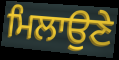
ਮਿਲਾਉਣੇ